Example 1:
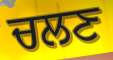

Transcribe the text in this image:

ਚਲਣ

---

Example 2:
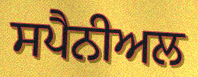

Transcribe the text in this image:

ਸਪੈਨੀਅਲ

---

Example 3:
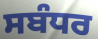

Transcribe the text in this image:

ਸਬੰਧਰ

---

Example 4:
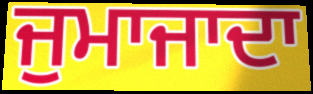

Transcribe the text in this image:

ਜੁਮਾਜਾਦਾ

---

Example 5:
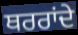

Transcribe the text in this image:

ਥਰਰਾਂਦੇ